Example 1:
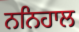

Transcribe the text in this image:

ਨਨਿਹਾਲ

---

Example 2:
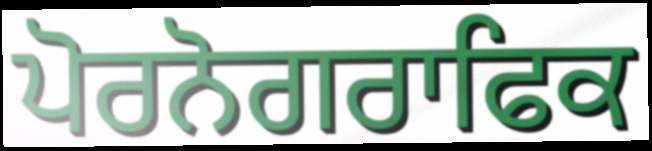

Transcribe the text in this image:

ਪੋਰਨੋਗਰਾਫਿਕ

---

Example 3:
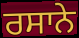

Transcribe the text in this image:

ਰਸਾਨੇ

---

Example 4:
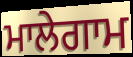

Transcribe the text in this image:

ਮਾਲੇਗਾਮ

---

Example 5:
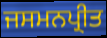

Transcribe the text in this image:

ਜਸਮਨਪ੍ਰੀਤ